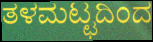
ತಳಮಟ್ಟದಿಂದ